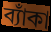
ব্যাঁকা